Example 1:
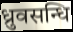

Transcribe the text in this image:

ध्रुवसन्धि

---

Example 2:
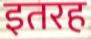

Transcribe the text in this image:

इतरह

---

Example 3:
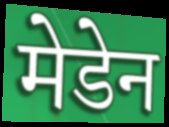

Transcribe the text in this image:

मेडेन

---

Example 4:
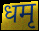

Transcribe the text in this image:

धमृ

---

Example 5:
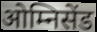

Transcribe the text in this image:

ओम्निसेंड